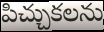
పిచ్చుకలను